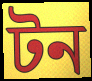
টন